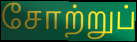
சோற்றுப்